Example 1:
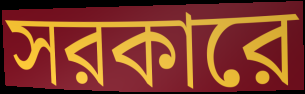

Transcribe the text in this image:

সরকারে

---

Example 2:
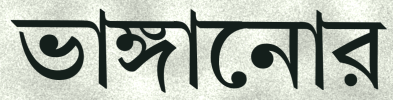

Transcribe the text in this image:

ভাঙ্গানোর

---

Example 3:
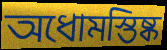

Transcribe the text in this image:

অধোমস্তিষ্ক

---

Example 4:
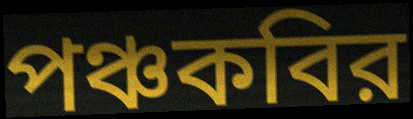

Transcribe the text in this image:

পঞ্চকবির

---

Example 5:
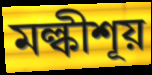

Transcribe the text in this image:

মল্কীশূয়